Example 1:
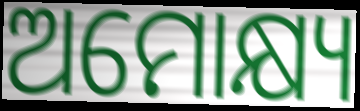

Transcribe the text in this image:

ଅମୋକ୍ଷ୍ୟ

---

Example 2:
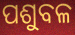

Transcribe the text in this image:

ପଶୁବଳ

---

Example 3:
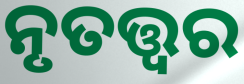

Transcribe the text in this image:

ନୃତତ୍ତ୍ୱର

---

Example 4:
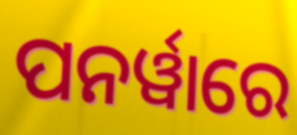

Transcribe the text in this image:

ପନର୍ୱାରେ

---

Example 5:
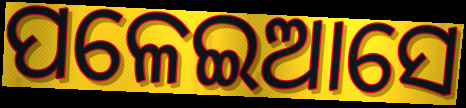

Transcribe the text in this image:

ପଳେଇଆସେ